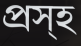
প্রস্হ